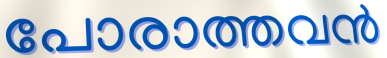
പോരാത്തവൻ